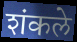
शंकले